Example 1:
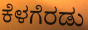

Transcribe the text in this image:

ಕೆಳಗೆರಡು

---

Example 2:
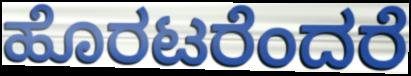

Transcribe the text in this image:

ಹೊರಟರೆಂದರೆ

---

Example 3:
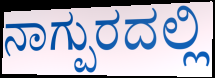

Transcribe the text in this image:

ನಾಗ್ಪುರದಲ್ಲಿ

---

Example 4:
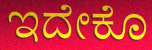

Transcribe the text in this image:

ಇದೇಕೊ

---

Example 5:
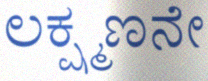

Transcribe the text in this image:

ಲಕ್ಷ್ಮಣನೇ